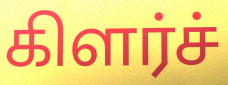
கிளர்ச்